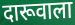
दारूवाला